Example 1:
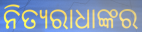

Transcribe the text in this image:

ନିତ୍ୟରାଧାଙ୍କର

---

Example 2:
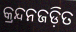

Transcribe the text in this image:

କ୍ରନ୍ଦନଜଡ଼ିତ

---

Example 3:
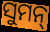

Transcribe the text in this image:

ସୁମନ୍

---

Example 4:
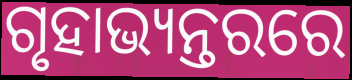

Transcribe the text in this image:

ଗୃହାଭ୍ୟନ୍ତରରେ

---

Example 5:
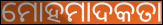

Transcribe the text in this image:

ମୋହମାଦକତା